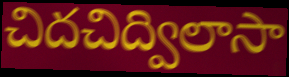
చిదచిద్విలాసా